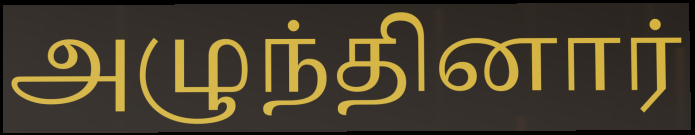
அழுந்தினார்